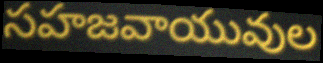
సహజవాయువుల